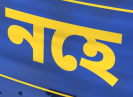
নহে